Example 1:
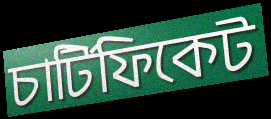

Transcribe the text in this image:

চাৰ্টিফিকেট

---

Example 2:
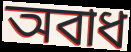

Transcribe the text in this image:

অবাধ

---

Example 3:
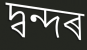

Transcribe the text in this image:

দ্বন্দৰ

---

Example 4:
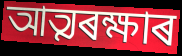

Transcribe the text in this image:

আত্মৰক্ষাৰ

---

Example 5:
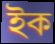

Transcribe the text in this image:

ইক